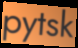
pytsk